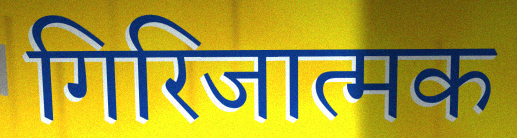
गिरिजात्मक